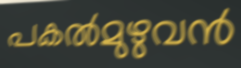
പകൽമുഴുവൻ